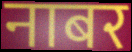
नाबर